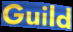
Guild